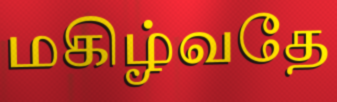
மகிழ்வதே